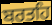
ਬਰਤਹਿ